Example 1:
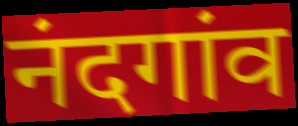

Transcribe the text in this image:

नंदगांव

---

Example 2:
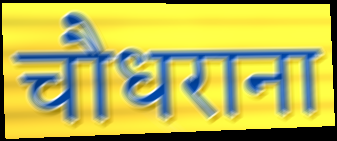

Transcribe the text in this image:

चौधराना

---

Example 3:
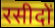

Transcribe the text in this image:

रसीदों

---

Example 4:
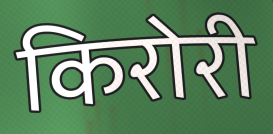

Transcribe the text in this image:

किरोरी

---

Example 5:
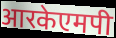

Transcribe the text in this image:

आरकेएमपी